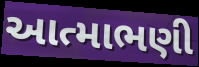
આત્માભણી